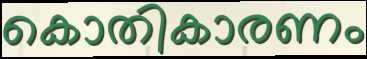
കൊതികാരണം